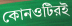
কোনওটিরই